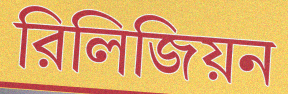
রিলিজিয়ন